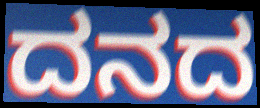
ದನದ